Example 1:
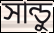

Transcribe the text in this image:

সান্ডু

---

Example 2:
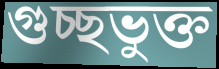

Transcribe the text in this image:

গুচ্ছভুক্ত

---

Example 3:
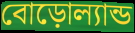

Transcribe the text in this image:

বোড়োল্যান্ড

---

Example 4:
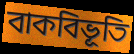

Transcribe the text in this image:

বাকবিভূতি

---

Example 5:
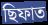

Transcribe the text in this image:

ছিফাত